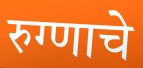
रुग्‍णाचे